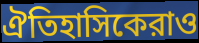
ঐতিহাসিকেরাও